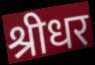
श्रीधर